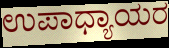
ಉಪಾಧ್ಯಾಯರ